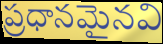
ప్రధానమైనవి